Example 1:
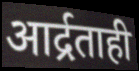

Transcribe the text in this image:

आर्द्रताही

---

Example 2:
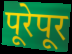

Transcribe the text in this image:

पूरेपूर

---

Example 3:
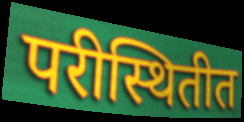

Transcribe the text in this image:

परीस्थितीत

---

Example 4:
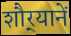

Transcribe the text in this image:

शौर्यानें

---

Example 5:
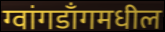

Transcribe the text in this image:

ग्वांगडाँगमधील